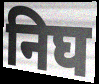
निघ